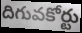
దిగువకోర్టు